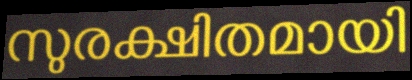
സുരക്ഷിതമായി